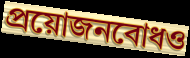
প্রয়োজনবোধও